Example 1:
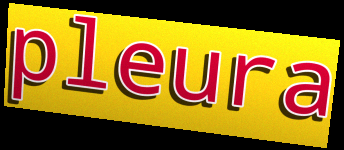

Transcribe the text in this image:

pleura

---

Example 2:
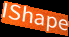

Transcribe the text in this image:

IShape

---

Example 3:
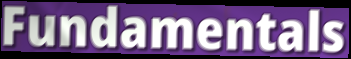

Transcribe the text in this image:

Fundamentals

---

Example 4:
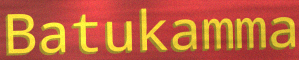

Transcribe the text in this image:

Batukamma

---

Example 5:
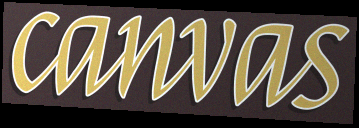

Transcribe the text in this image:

canvas